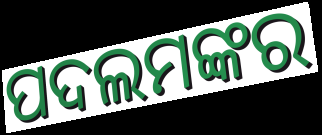
ପଦଲମଙ୍କର